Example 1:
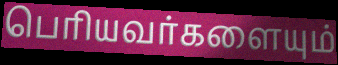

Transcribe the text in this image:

பெரியவர்களையும்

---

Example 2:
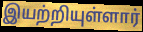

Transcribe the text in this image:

இயற்றியுள்ளார்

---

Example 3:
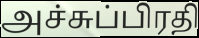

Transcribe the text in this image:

அச்சுப்பிரதி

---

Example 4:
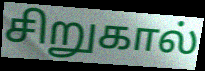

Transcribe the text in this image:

சிறுகால்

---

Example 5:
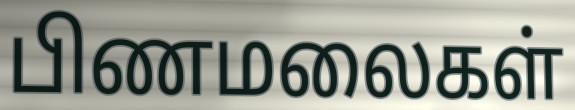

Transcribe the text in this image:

பிணமலைகள்